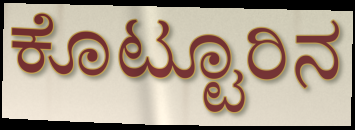
ಕೊಟ್ಟೂರಿನ